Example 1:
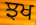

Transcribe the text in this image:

ਝਖ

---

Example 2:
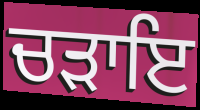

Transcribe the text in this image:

ਚੜਾਇ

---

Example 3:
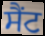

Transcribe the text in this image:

ਸੈਂਟ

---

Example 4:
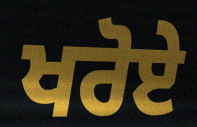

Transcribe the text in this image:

ਖਰੋਏ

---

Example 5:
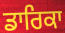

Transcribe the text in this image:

ਡਾਰਿਕਾ